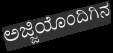
ಅಜ್ಜಿಯೊಂದಿಗಿನ